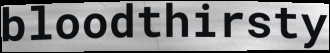
bloodthirsty